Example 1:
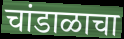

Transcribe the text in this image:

चांडाळाचा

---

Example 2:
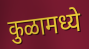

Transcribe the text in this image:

कुळामध्ये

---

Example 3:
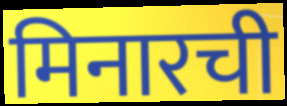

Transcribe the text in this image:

मिनारची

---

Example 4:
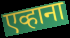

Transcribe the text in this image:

एव्हाना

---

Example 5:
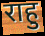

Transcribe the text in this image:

राहु